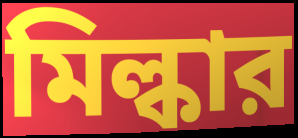
মিল্কার